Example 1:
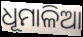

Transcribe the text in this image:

ଧୂମାଳିଆ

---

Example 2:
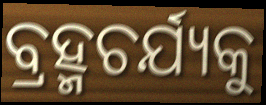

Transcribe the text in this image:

ବ୍ରହ୍ମଚର୍ଯ୍ୟକୁ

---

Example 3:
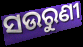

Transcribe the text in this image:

ସଉରୁଣୀ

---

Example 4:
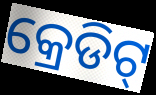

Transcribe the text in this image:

କ୍ରେଡିଟ୍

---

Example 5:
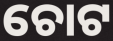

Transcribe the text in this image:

ଚୋଟ